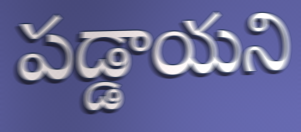
పడ్డాయని